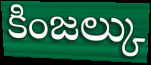
కింజల్కు